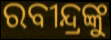
ରବୀନ୍ଦ୍ରଙ୍କୁ